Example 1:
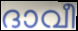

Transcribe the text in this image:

ദാവീ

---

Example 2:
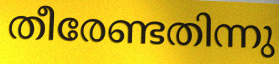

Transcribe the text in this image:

തീരേണ്ടതിന്നു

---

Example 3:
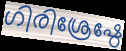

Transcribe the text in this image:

ഗിരിശ്രേഷ്ഠേ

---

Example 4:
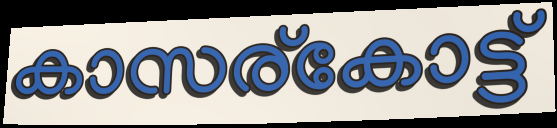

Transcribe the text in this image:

കാസര്കോട്ട്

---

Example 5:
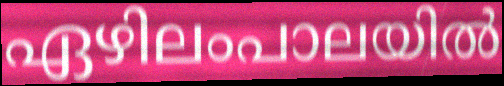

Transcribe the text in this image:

ഏഴിലംപാലയിൽ